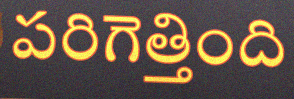
పరిగెత్తింది